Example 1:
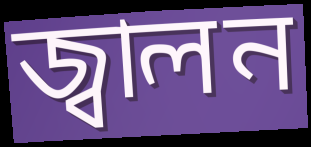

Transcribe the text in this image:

জ্বালন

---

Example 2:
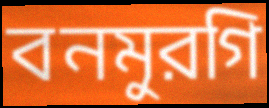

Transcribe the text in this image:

বনমুরগি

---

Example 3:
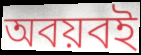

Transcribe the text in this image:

অবয়বই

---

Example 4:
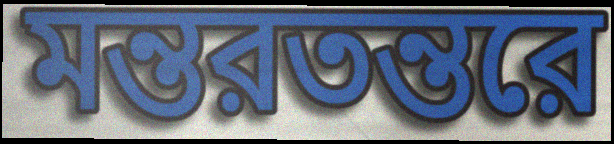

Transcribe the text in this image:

মন্তরতন্তরে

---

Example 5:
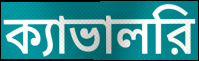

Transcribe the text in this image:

ক্যাভালরি